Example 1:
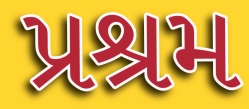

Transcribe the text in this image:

પ્રશ્રમ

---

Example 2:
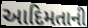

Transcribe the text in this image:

આદિમતાની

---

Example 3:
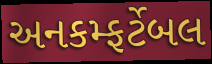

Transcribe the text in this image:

અનકમ્ફર્ટેબલ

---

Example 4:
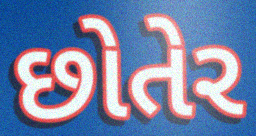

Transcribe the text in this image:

છોતેર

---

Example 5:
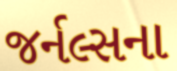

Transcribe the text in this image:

જર્નલ્સના